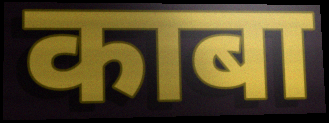
काबा